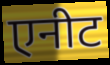
एनीट